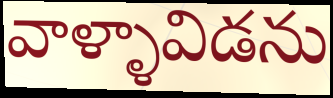
వాళ్ళావిడను